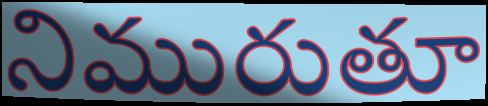
నిమురుతూ